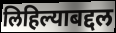
लिहिल्याबद्दल